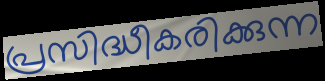
പ്രസിദ്ധീകരിക്കുന്ന